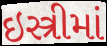
ઇસ્ત્રીમાં